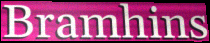
Bramhins